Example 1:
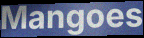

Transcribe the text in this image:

Mangoes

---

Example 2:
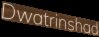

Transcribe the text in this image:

Dwatrinshad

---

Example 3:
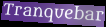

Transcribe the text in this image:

Tranquebar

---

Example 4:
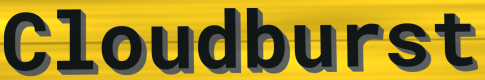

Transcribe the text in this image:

Cloudburst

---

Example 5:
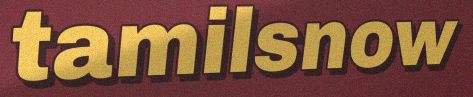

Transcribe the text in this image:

tamilsnow